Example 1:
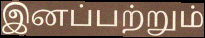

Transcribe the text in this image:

இனப்பற்றும்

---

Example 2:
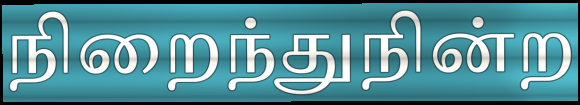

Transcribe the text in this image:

நிறைந்துநின்ற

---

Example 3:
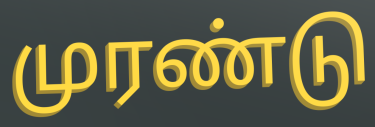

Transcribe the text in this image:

முரண்டு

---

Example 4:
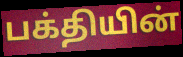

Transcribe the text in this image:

பக்தியின்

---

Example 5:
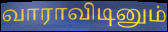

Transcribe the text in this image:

வாராவிடினும்